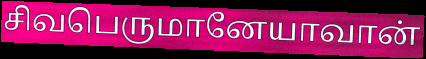
சிவபெருமானேயாவான்